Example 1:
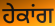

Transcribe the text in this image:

ਹੇਕਾਂਗ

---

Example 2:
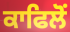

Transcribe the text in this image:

ਕਾਫਿਲੋਂ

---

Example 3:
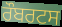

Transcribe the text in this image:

ਰੌਬਰਟਸ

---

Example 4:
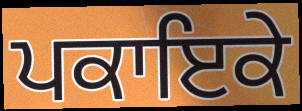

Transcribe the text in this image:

ਪਕਾਇਕੇ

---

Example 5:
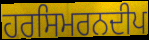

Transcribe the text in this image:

ਹਰਸਿਮਰਨਦੀਪ